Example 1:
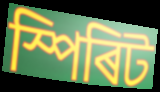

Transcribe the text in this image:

স্পিৰিট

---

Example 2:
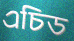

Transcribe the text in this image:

এচিড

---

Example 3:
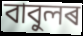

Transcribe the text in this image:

বাবুলৰ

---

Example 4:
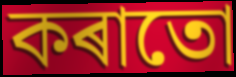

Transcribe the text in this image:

কৰাতো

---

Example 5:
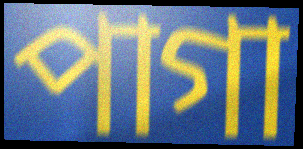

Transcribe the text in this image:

পাগা